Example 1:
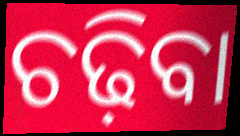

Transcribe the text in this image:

ଚଢ଼ିବା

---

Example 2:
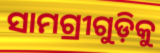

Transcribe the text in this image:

ସାମଗ୍ରୀଗୁଡ଼ିକୁ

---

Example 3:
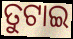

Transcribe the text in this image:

ତୁଟାଇ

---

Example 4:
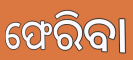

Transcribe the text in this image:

ଫେରିବା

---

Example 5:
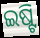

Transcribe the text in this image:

ଇଷ୍ଟି